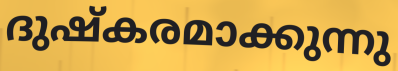
ദുഷ്കരമാക്കുന്നു